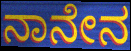
ನಾನೇನ